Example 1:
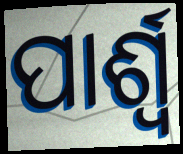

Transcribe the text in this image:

ପାର୍ଶ୍ୱ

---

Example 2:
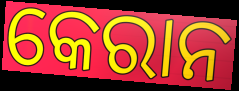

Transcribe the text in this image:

କେରାନ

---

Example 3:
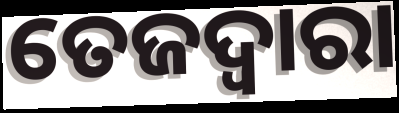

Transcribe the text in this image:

ତେଜଦ୍ୱାରା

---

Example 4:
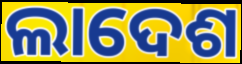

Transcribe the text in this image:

ଲାଦେଶ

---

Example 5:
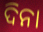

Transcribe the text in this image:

ଦିନା